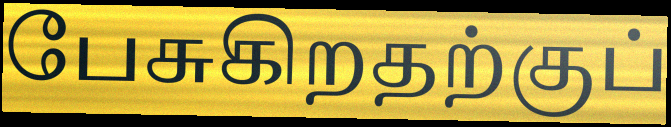
பேசுகிறதற்குப்